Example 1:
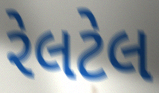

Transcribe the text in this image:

રેલટેલ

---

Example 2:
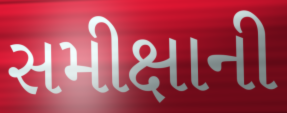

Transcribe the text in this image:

સમીક્ષાની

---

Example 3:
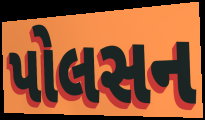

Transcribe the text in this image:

પોલસન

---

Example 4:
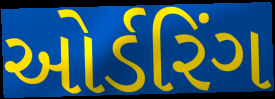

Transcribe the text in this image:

ઓર્ડરિંગ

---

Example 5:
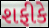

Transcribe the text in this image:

શફીકે